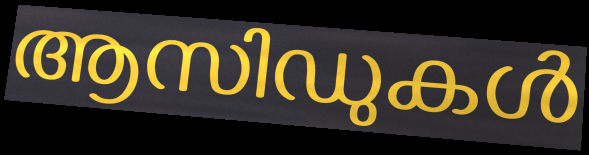
ആസിഡുകൾ